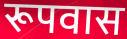
रूपवास